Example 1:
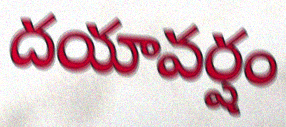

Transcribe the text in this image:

దయావర్షం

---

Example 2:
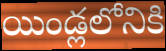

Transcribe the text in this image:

యిండ్లలోనికి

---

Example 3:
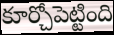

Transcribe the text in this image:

కూర్చోపెట్టింది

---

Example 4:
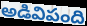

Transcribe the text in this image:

అడివిపంది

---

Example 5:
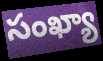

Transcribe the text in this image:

సంఖ్యా